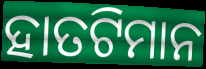
ହାତଟିମାନ